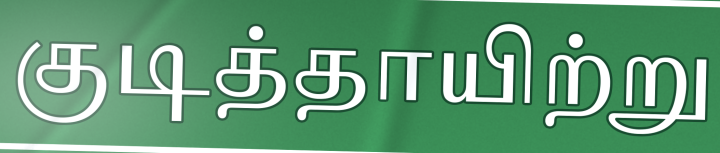
குடித்தாயிற்று